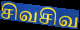
சிவசிவ